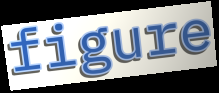
figure